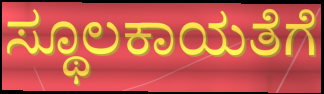
ಸ್ಥೂಲಕಾಯತೆಗೆ